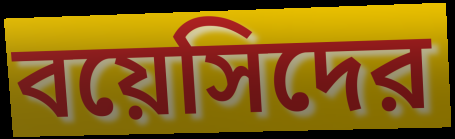
বয়েসিদের